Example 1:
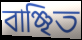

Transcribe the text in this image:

বাঞ্ছিত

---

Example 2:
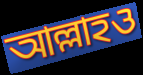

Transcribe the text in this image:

আল্লাহও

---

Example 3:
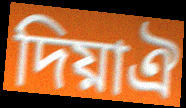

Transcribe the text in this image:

দিয়াঐ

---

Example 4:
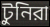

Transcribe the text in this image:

টুনিরা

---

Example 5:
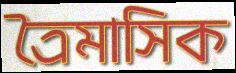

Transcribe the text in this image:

ত্রৈমাসিক